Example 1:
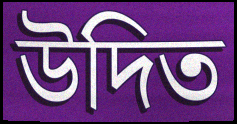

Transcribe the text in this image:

উদিত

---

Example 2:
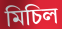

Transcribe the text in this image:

মিচিল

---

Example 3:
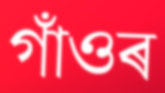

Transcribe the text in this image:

গাঁওৰ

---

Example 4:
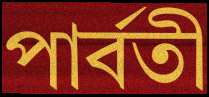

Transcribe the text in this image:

পাৰ্বতী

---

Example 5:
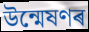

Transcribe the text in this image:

উন্মেষণৰ